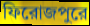
ফিরোজপুরে